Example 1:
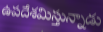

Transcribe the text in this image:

ఉపదేశమిస్తున్నాడు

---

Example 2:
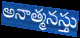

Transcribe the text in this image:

అనాత్మనస్తు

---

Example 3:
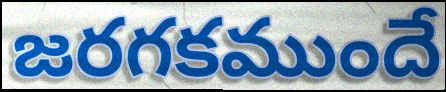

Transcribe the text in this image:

జరగకముందే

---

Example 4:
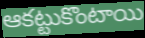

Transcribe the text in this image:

ఆకట్టుకొంటాయి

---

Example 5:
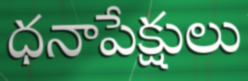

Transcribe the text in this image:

ధనాపేక్షులు